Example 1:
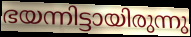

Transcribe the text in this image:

ഭയന്നിട്ടായിരുന്നു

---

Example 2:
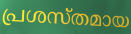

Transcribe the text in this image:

പ്രശസ്തമായ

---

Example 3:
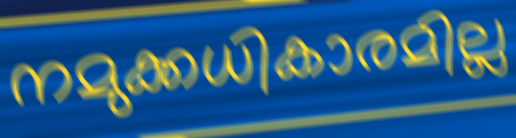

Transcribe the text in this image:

നമുക്കധികാരമില്ല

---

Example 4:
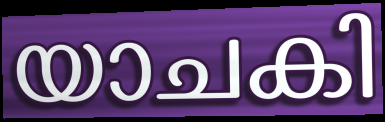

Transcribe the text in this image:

യാചകി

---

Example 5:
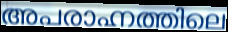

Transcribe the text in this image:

അപരാഹ്നത്തിലെ